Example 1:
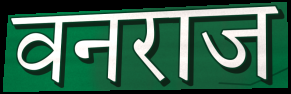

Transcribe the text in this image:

वनराज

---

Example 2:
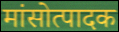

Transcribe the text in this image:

मांसोत्पादक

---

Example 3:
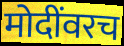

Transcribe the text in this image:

मोदींवरच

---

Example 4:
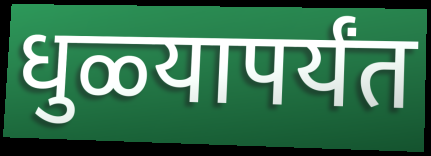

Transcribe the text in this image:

धुळ्यापर्यंत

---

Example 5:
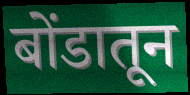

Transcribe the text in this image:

बोंडातून